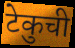
टेकुची